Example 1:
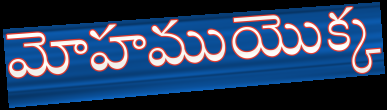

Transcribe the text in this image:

మోహముయొక్క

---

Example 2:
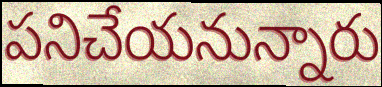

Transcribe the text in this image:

పనిచేయనున్నారు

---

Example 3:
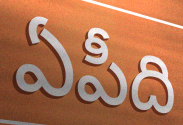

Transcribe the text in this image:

ఏపీది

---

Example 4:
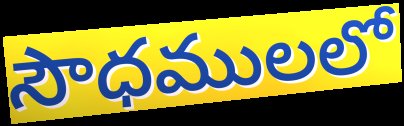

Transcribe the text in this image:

సౌధములలో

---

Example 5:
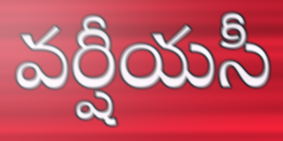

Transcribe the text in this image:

వర్షీయసీ